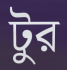
টুর